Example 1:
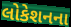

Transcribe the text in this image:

લોકેશનના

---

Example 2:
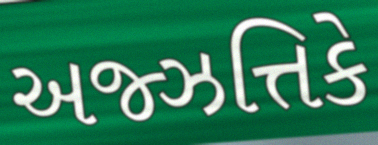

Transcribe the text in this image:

અજ્ઝત્તિકે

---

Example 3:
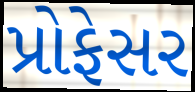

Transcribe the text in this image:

પ્રોફેસર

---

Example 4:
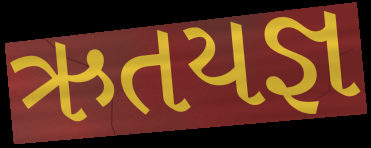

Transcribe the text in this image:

ઋતયજ્ઞ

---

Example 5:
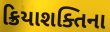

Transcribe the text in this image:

ક્રિયાશક્તિના